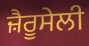
ਜ਼ੈਰੂਸੇਲੀ